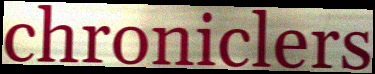
chroniclers